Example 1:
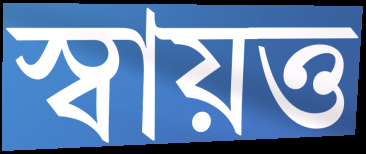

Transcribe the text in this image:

স্বায়ত্ত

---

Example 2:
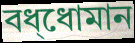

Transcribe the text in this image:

বধ্ধোমান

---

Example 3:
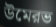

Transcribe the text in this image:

উমেরভ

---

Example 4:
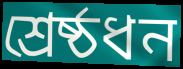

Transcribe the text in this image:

শ্রেষ্ঠধন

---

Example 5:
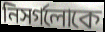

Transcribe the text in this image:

নিসর্গলোকে